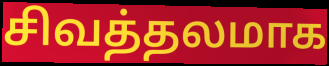
சிவத்தலமாக